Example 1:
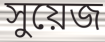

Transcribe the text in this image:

সুয়েজ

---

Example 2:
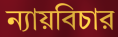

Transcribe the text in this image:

ন্যায়বিচার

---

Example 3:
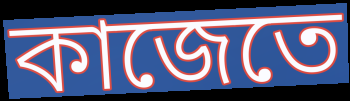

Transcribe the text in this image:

কাজেতে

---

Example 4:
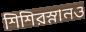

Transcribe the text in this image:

শিশিরস্নানও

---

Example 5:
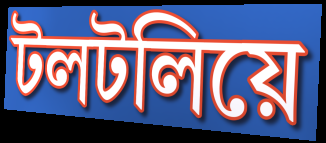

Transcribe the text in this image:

টলটলিয়ে